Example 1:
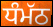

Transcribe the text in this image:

ਧੰਮੱਠ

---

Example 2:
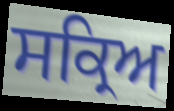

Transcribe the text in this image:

ਸਕ੍ਰਿਅ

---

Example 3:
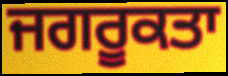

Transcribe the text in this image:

ਜਗਰੂਕਤਾ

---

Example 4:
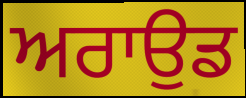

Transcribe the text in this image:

ਅਰਾਉਡ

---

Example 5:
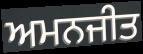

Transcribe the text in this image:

ਅਮਨਜੀਤ